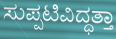
ಸುಪ್ಪಟಿವಿದ್ಧತ್ತಾ